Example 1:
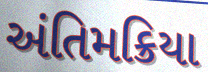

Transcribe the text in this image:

અંતિમક્રિયા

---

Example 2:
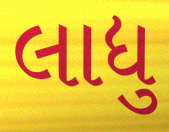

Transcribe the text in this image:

લાદ્યુ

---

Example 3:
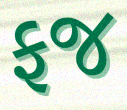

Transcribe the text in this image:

ફજ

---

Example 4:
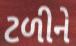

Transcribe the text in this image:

ટળીને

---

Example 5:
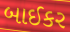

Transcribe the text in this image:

બાઈકર